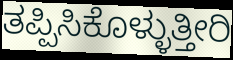
ತಪ್ಪಿಸಿಕೊಳ್ಳುತ್ತೀರಿ